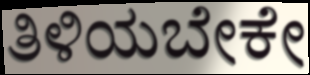
ತಿಳಿಯಬೇಕೇ